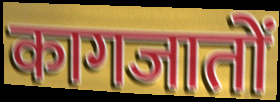
कागजातों